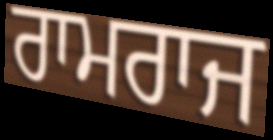
ਰਾਮਰਾਜ